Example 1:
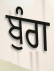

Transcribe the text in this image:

ਬੁੰਗ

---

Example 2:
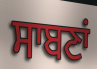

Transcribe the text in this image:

ਸਾਬਣਾਂ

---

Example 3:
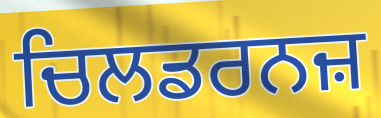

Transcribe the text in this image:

ਚਿਲਡਰਨਜ਼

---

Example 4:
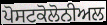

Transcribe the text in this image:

ਪੋਸਟਕੋਲੋਨੀਅਲ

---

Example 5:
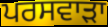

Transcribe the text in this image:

ਪਰਸਵਾੜਾ